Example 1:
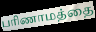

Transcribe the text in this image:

பரிணாமத்தை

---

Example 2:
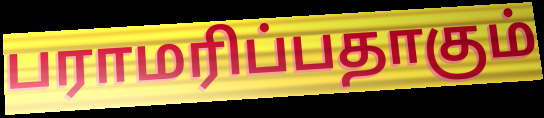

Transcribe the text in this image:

பராமரிப்பதாகும்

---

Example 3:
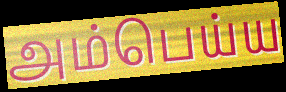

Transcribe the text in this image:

அம்பெய்ய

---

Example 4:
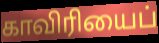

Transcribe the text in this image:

காவிரியைப்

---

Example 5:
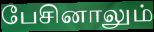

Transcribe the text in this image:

பேசினாலும்